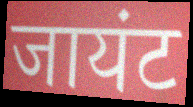
जायंट